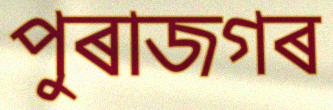
পুৰাজগৰ